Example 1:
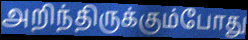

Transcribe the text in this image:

அறிந்திருக்கும்போது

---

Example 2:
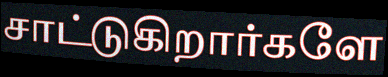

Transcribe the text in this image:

சாட்டுகிறார்களே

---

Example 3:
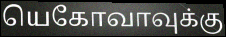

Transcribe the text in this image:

யெகோவாவுக்கு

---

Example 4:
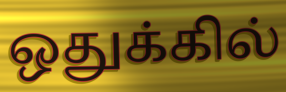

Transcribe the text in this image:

ஒதுக்கில்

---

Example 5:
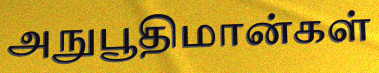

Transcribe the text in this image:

அநுபூதிமான்கள்